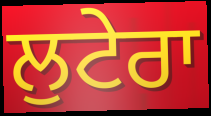
ਲੁਟੇਰਾ